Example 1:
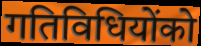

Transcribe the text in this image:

गतिविधियोंको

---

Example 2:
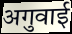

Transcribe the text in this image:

अगुवाई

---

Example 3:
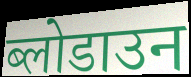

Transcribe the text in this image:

ब्लोडाउन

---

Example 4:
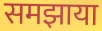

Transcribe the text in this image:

समझाया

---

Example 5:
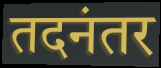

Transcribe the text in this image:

तदनंतर